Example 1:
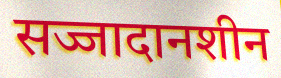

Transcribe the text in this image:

सज्जादानशीन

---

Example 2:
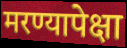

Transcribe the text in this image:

मरण्यापेक्षा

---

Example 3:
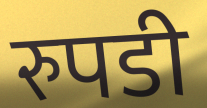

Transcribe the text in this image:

रुपडी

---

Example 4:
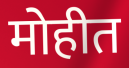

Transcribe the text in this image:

मोहीत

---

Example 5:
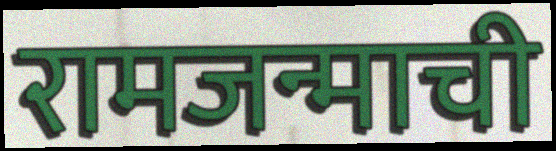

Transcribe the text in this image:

रामजन्माची